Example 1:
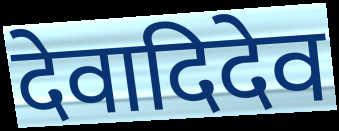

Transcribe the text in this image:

देवादिदेव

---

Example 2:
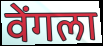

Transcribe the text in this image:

वेंगला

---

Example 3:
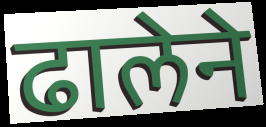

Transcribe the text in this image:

ढालेने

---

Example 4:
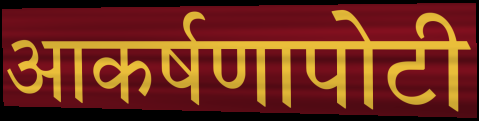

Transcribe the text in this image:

आकर्षणापोटी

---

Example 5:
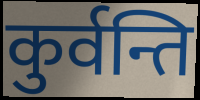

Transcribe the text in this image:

कुर्वन्ति